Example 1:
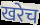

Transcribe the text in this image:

खरेच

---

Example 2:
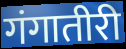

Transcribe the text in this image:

गंगातीरी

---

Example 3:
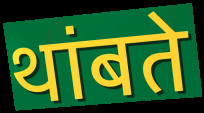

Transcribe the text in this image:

थांबते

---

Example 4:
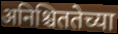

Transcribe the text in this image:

अनिश्चिततेच्या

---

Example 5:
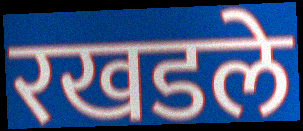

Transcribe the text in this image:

रखडले